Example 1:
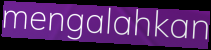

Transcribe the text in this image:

mengalahkan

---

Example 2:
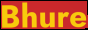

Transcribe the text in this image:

Bhure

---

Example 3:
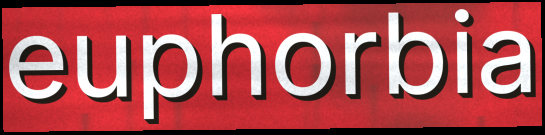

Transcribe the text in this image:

euphorbia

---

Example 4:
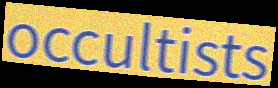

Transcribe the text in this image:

occultists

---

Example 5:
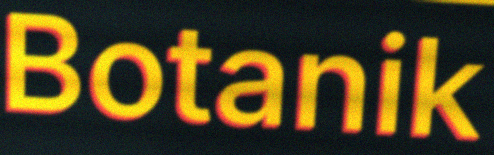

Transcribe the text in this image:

Botanik